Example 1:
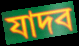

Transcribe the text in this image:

যাদব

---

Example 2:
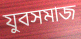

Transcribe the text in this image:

যুবসমাজ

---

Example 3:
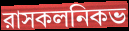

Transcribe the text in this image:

রাসকলনিকভ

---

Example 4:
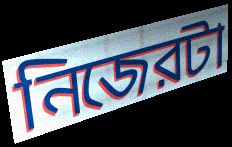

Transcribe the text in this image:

নিজেরটা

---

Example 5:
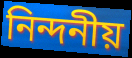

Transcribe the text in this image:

নিন্দনীয়